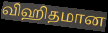
விஹிதமான